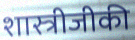
शास्त्रीजीकी